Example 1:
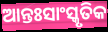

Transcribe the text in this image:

ଆନ୍ତଃସାଂସ୍କୃତିକ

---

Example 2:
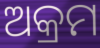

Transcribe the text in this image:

ଅକ୍ରମ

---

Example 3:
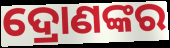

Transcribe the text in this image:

ଦ୍ରୋଣଙ୍କର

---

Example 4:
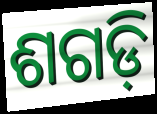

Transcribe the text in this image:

ଶଗଡ଼ି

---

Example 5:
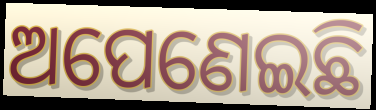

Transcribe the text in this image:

ଅପେଣେଇଛି